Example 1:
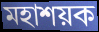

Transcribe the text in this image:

মহাশয়ক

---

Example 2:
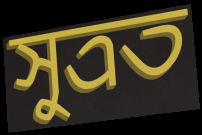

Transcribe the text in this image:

সুত্ৰত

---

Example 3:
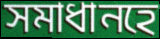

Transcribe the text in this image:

সমাধানহে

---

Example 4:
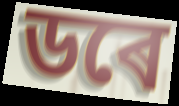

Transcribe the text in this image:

ডৰে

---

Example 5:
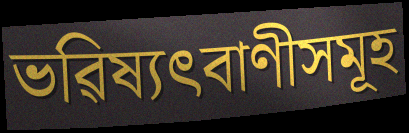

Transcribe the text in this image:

ভৱিষ্যৎবাণীসমূহ